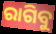
ରାଗିବୁ